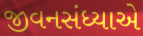
જીવનસંધ્યાએ